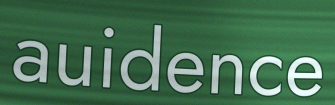
auidence